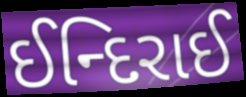
ઈન્દિરાઈ